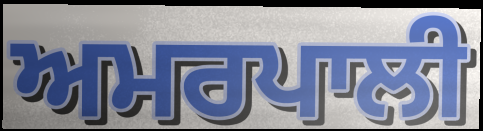
ਅਮਰਪਾਲੀ